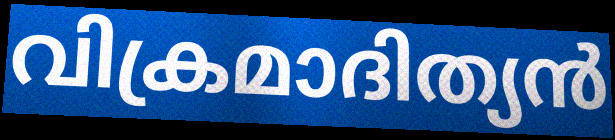
വിക്രമാദിത്യൻ